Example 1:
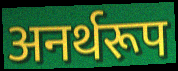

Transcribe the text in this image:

अनर्थरूप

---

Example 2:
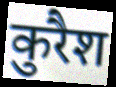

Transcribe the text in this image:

कुरैश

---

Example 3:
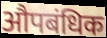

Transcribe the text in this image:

औपबंधिक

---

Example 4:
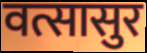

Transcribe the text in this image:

वत्सासुर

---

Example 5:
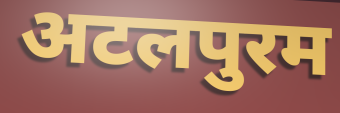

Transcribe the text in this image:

अटलपुरम